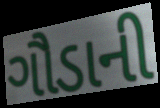
ગૌડાની